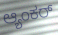
ಆ್ಯಂಕರ್